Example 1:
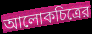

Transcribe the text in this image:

আলোকচিত্রের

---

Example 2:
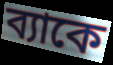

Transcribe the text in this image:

ব্যাকে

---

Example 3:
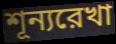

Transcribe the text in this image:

শূন্যরেখা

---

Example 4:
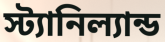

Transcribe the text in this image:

স্ট্যানিল্যান্ড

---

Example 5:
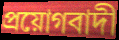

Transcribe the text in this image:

প্রয়োগবাদী